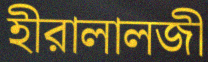
হীরালালজী